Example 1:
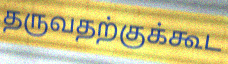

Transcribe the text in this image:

தருவதற்குக்கூட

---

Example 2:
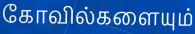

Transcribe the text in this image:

கோவில்களையும்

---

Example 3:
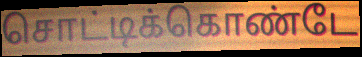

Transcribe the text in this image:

சொட்டிக்கொண்டே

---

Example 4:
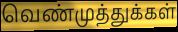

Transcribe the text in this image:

வெண்முத்துக்கள்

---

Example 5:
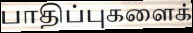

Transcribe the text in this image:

பாதிப்புகளைக்